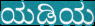
ಯಡಿಯ